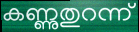
കണ്ണുതുറന്ന്